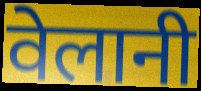
वेलानी